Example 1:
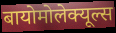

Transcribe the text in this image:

बायोमोलेक्यूल्स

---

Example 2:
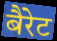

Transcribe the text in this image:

बैरेट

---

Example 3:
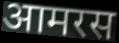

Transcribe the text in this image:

आमरस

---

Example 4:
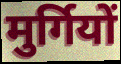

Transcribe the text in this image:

मुर्गियों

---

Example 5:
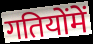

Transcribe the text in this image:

गतियोंमें